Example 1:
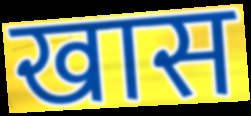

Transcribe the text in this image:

खास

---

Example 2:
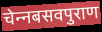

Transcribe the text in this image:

चेन्नबसवपुराण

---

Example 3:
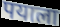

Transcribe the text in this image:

पयाला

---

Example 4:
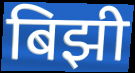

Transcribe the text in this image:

बिझी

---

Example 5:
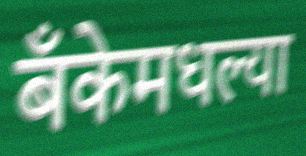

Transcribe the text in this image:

बँकेमधल्या